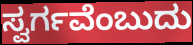
ಸ್ವರ್ಗವೆಂಬುದು